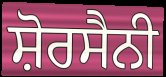
ਸ਼ੋਰਸੈਨੀ